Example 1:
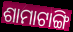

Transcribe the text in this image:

ଶାମାଟାଙ୍ଗି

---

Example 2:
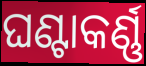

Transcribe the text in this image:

ଘଣ୍ଟାକର୍ଣ୍ଣ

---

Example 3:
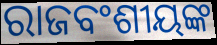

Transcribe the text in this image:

ରାଜବଂଶୀୟଙ୍କ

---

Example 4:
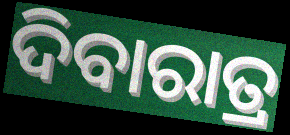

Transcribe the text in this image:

ଦିବାରାତ୍ର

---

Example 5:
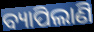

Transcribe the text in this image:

ବ୍ୟାପିଲାଣି